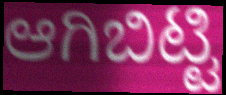
ಆಗಿಬಿಟ್ಟಿ